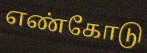
எண்கோடு